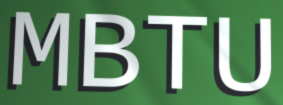
MBTU